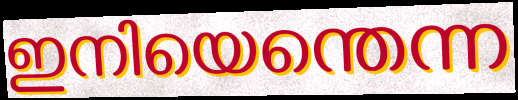
ഇനിയെന്തെന്ന